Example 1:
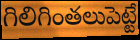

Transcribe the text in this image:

గిలిగింతలుపెట్టే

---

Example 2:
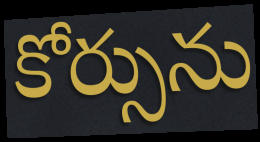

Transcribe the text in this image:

కోర్సును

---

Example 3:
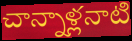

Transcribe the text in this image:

చాన్నాళ్లనాటి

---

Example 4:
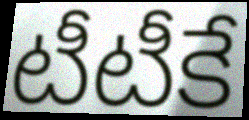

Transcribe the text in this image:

టీటీకే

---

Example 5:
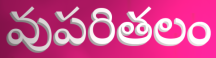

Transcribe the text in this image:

వుపరితలం